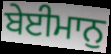
ਬੇਈਮਾਨੁ